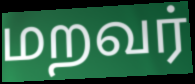
மறவர்